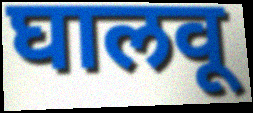
घालवू